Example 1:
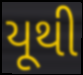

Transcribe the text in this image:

યૂથી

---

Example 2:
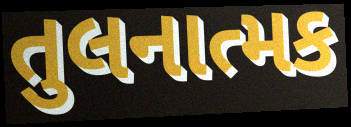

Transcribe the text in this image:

તુલનાત્મક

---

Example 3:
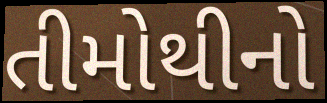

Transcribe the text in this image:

તીમોથીનો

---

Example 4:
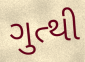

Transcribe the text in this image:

ગુત્થી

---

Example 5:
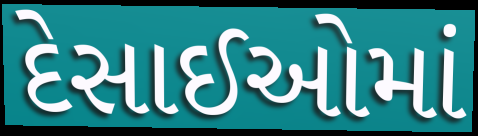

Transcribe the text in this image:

દેસાઈઓમાં